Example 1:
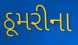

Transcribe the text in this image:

ઠૂમરીના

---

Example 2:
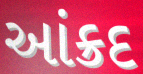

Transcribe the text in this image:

આંક્રદ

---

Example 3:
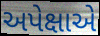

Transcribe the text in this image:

અપેક્ષાએ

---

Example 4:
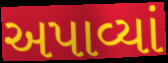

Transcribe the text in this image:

અપાવ્યાં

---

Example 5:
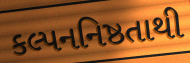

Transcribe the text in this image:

કલ્પનનિષ્ઠતાથી